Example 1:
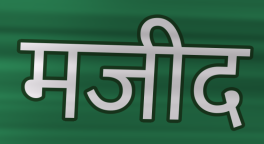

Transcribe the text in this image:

मजीद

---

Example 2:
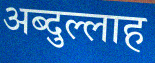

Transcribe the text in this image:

अब्दुल्लाह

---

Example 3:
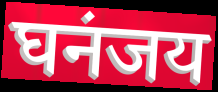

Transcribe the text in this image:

घनंजय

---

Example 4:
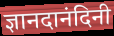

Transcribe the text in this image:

ज्ञानदानंदिनी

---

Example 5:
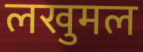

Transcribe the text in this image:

लखुमल